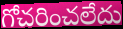
గోచరించలేదు